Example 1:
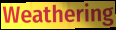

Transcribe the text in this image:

Weathering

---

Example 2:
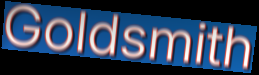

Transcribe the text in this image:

Goldsmith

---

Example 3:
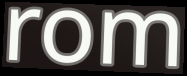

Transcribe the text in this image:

rom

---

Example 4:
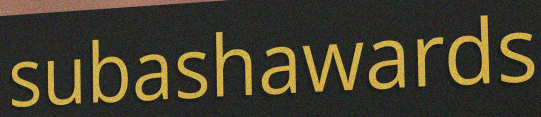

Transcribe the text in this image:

subashawards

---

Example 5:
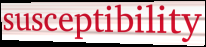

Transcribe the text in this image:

susceptibility